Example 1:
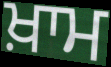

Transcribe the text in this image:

ਖ਼ਾਮ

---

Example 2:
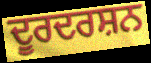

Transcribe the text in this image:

ਦੂਰਦਰਸ਼ਨ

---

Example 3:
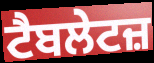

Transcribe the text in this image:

ਟੈਬਲੇਟਜ਼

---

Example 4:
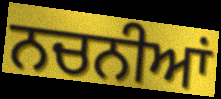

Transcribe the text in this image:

ਨਚਨੀਆਂ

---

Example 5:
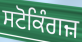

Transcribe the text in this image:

ਸਟੋਕਿੰਗਜ਼